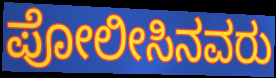
ಪೋಲೀಸಿನವರು